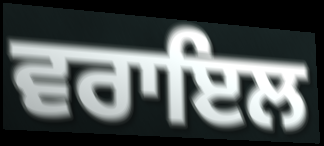
ਵਰਾਇਲ